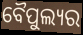
ବୈପୁଲ୍ୟର